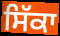
ਸਿੱਕਾ